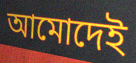
আমোদেই